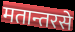
मतान्तरसे